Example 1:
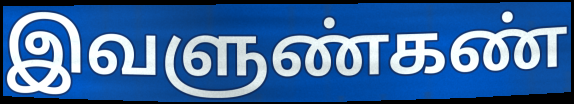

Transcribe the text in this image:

இவளுண்கண்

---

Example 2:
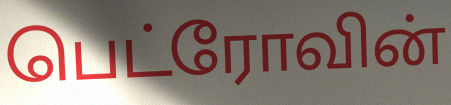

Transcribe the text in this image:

பெட்ரோவின்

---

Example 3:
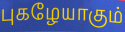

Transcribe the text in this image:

புகழேயாகும்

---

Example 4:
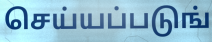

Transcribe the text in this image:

செய்யப்படுங்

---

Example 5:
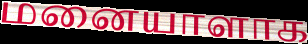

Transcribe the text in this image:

மனையாளாக